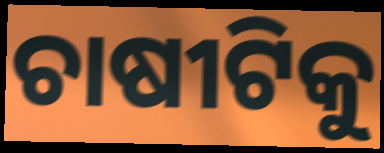
ଚାଷୀଟିକୁ